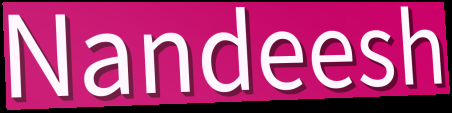
Nandeesh